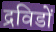
द्रविडों